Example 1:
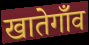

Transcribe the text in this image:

खातेगाँव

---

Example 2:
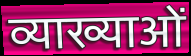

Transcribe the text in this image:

व्याख्याओं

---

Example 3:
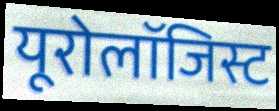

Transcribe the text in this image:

यूरोलॉजिस्ट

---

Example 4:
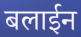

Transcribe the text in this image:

बलाईन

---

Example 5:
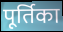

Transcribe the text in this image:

पूर्तिका